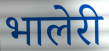
भालेरी